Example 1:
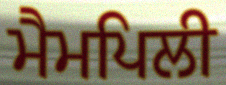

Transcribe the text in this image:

ਮੈਮਪਿਲੀ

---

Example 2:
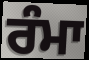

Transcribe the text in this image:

ਰੰਮਾ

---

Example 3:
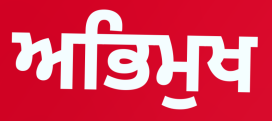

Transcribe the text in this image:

ਅਭਿਮੁਖ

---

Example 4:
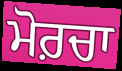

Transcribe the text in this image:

ਮੋਰ਼ਚਾ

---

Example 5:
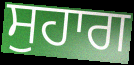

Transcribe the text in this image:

ਸੁਹਾਗ